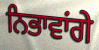
ਨਿਭਾਵਾਂਗੇ